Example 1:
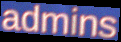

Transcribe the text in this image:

admins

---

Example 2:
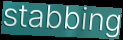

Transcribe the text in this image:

stabbing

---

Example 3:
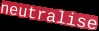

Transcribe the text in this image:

neutralise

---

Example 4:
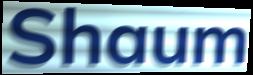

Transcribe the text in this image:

Shaum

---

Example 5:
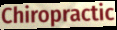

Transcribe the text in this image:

Chiropractic